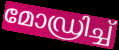
മോഡ്രിച്ച്